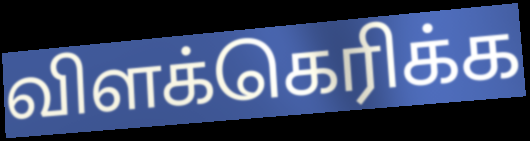
விளக்கெரிக்க